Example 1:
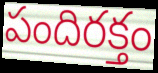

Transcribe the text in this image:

పందిరక్తం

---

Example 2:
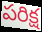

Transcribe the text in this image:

పరిక్ష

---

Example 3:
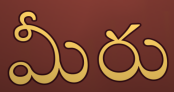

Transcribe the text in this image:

మీరు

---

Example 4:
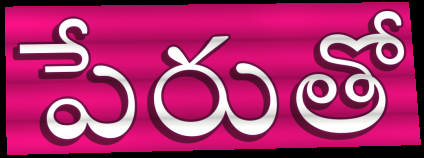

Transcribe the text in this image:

పేరుతో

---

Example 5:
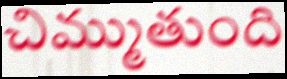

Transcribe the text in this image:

చిమ్ముతుంది